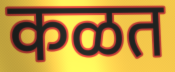
कळत